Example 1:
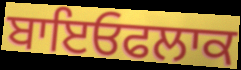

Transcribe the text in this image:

ਬਾਇਓਫਲਾਕ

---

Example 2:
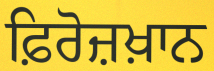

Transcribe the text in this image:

ਫ਼ਿਰੋਜ਼ਖ਼ਾਨ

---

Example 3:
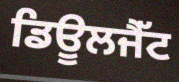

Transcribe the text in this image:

ਡਿਊਲਜੈੱਟ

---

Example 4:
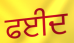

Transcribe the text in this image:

ਫਈਦ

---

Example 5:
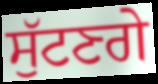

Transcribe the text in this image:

ਸੁੱਟਣਗੇ